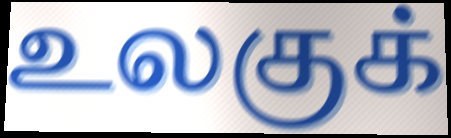
உலகுக்